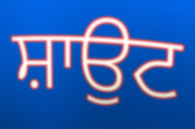
ਸ਼ਾਉਟ